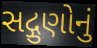
સદ્ગુણોનું